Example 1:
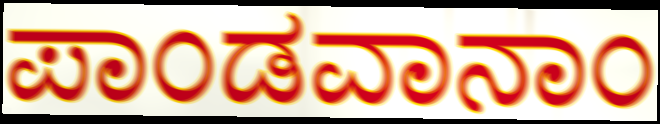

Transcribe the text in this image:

ಪಾಂಡವಾನಾಂ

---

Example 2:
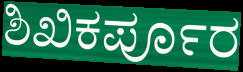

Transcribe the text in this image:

ಶಿಖಿಕರ್ಪೂರ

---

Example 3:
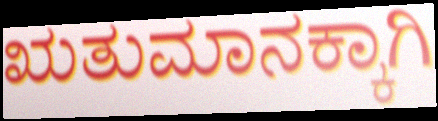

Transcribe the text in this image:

ಋತುಮಾನಕ್ಕಾಗಿ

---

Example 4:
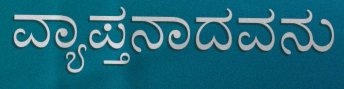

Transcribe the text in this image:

ವ್ಯಾಪ್ತನಾದವನು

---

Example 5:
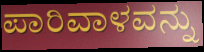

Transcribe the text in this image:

ಪಾರಿವಾಳವನ್ನು